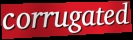
corrugated